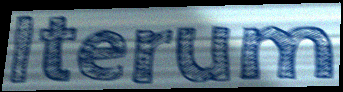
Iterum